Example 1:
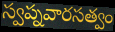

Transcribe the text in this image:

స్వప్నవారసత్వం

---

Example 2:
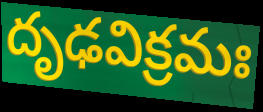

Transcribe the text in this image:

దృఢవిక్రమః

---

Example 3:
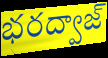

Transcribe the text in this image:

భరద్వాజ్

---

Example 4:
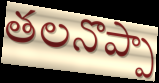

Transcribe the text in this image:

తలనొప్పా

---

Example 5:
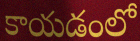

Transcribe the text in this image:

కాయడంలో